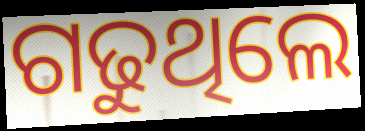
ଗଢୁଥିଲେ